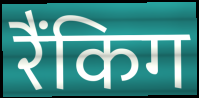
रैंकिग